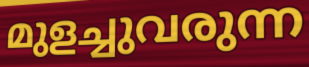
മുളച്ചുവരുന്ന